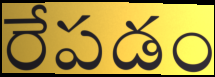
రేపడం